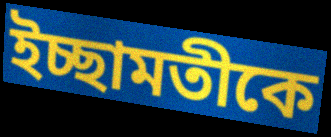
ইচ্ছামতীকে